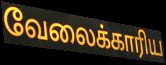
வேலைக்காரிய